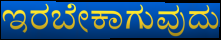
ಇರಬೇಕಾಗುವುದು